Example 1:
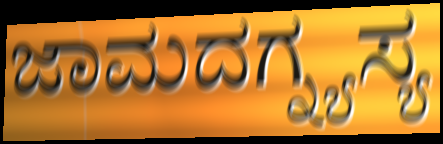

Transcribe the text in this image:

ಜಾಮದಗ್ನ್ಯಸ್ಯ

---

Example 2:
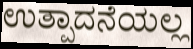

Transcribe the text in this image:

ಉತ್ಪಾದನೆಯಲ್ಲ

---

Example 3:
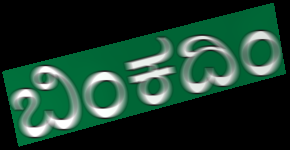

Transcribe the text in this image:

ಬಿಂಕದಿಂ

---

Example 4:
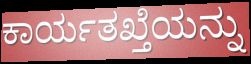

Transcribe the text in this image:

ಕಾರ್ಯತಖ್ತೆಯನ್ನು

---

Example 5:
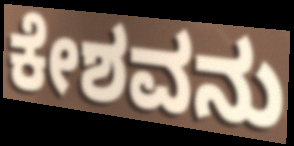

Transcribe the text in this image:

ಕೇಶವನು